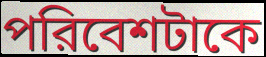
পরিবেশটাকে